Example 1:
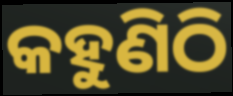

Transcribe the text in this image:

କହୁଣିଠି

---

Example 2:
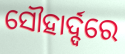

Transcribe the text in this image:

ସୌହାର୍ଦ୍ଦରେ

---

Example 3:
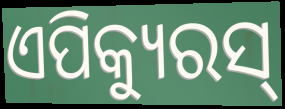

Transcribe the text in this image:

ଏପିକ୍ୟୁରସ୍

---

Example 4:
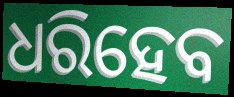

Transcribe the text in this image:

ଧରିହେବ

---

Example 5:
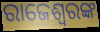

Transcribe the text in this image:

ରାଜେଶ୍ୱରଙ୍କ